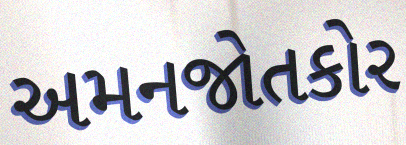
અમનજોતકોર